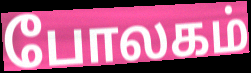
போலகம்